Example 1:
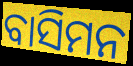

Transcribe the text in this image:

ବାସିମନ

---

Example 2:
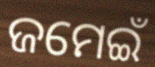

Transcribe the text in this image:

ଜମେଇଁ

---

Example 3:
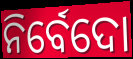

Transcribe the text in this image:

ନିର୍ବେଦୋ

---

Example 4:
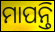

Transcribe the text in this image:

ମାପନ୍ତି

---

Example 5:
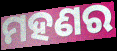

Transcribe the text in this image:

ମହଣର